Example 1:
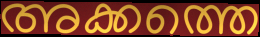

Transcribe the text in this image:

അക്കത്തെ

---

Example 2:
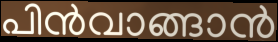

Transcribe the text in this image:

പിൻവാങ്ങാൻ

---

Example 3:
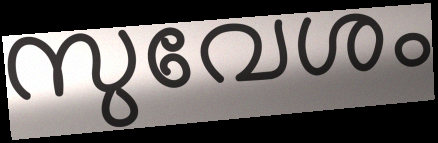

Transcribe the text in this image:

സുവേശം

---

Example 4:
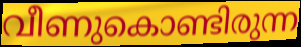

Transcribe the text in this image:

വീണുകൊണ്ടിരുന്ന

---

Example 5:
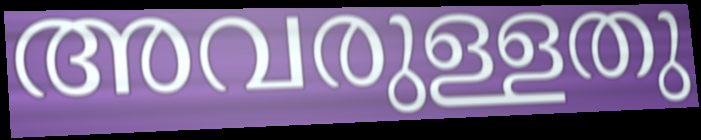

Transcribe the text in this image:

അവരുള്ളതു